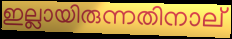
ഇല്ലായിരുന്നതിനാല്